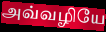
அவ்வழியே